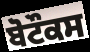
ਬੋਟੌਕਸ